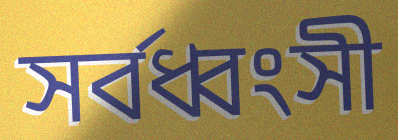
সর্বধ্বংসী